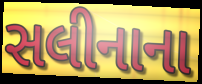
સલીનાના